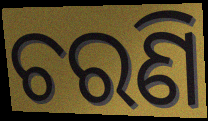
ଚରଣି